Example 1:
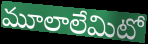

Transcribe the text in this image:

మూలాలేమిటో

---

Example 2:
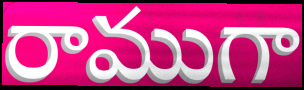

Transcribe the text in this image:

రాముగా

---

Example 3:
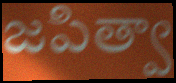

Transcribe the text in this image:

జపిత్వా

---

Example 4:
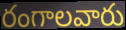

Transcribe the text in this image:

రంగాలవారు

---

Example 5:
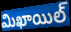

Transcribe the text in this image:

మిఖాయిల్